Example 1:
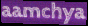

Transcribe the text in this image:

aamchya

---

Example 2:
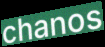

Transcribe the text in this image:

chanos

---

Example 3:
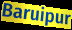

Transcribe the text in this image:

Baruipur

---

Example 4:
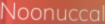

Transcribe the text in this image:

Noonuccal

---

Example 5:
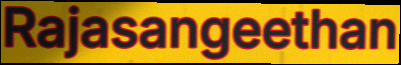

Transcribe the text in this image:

Rajasangeethan